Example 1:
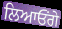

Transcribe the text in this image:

ਲਿਆਓਂਗੇ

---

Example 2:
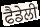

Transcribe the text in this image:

ਫੈਡੇਲੀ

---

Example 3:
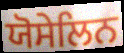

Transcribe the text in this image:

ਯੋਸੇਲਿਨ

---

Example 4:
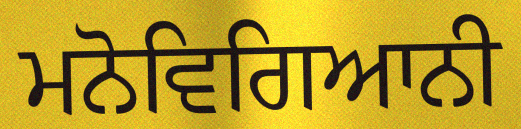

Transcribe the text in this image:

ਮਨੋਵਿਗਿਆਨੀ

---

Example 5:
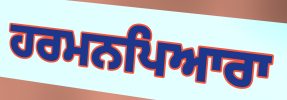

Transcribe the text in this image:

ਹਰਮਨਪਿਆਰਾ